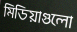
মিডিয়াগুলো